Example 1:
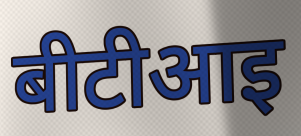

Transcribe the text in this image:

बीटीआइ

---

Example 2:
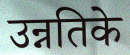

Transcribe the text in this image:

उन्नतिके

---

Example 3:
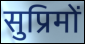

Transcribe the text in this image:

सुप्रिमों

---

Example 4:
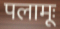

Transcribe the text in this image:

पलामूः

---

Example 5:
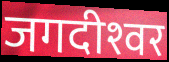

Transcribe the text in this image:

जगदीश्वर